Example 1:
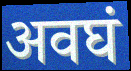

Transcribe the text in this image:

अवघं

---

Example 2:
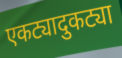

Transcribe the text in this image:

एकट्यादुकट्या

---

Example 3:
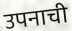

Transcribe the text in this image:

उपनाची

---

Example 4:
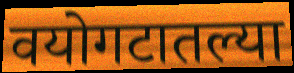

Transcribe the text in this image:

वयोगटातल्या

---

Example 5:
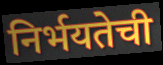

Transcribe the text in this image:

निर्भयतेची